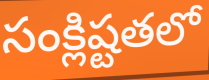
సంక్లిష్టతలో